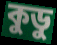
কুডু